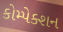
કોમ્પેક્શન